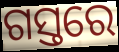
ଗସ୍ତରେ